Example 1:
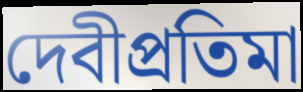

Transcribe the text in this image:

দেবীপ্রতিমা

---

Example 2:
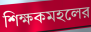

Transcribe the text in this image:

শিক্ষকমহলের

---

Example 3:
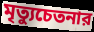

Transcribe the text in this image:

মৃত্যুচেতনার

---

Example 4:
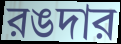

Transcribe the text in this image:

রঙদার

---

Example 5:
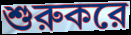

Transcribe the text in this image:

শুরুকরে